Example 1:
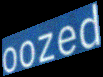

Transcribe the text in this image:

oozed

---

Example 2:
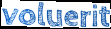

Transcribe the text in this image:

voluerit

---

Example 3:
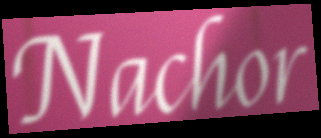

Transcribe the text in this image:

Nachor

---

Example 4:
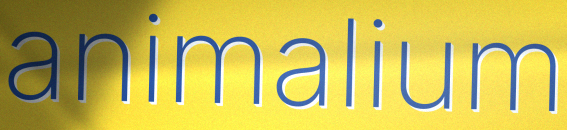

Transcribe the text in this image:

animalium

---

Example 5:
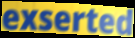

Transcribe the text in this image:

exserted